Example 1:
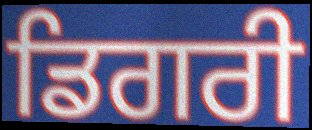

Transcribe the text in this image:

ਡਿਗਰੀ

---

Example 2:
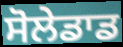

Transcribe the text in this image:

ਸੋਲੇਡਾਡ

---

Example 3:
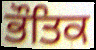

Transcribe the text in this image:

ਭੌਤਿਕ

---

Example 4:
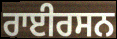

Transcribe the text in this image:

ਰਾਈਰਸਨ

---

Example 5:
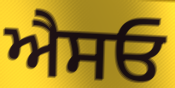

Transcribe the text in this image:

ਐਸਓ